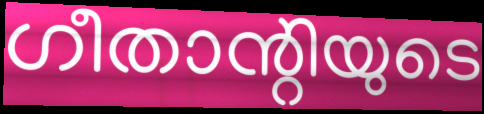
ഗീതാന്റിയുടെ